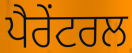
ਪੈਰੇਂਟਰਲ